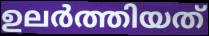
ഉലർത്തിയത്